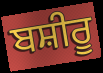
ਬਸ਼ੀਰੂ